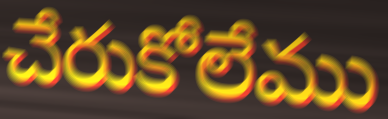
చేరుకోలేము